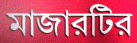
মাজারটির